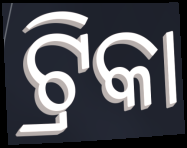
ଟ୍ରିକା